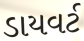
ડાયવર્ટ